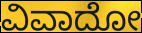
ವಿವಾದೋ